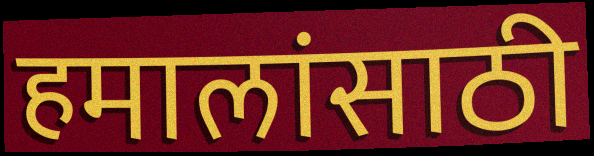
हमालांसाठी